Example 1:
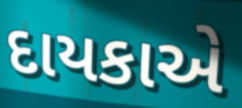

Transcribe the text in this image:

દાયકાએ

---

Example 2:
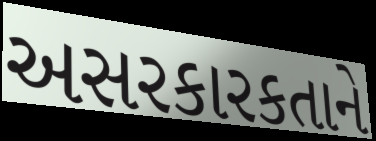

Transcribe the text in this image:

અસરકારકતાને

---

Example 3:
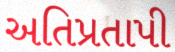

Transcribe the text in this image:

અતિપ્રતાપી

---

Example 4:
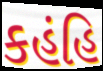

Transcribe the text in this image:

કહંહિ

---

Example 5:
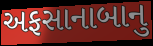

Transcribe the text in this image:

અફસાનાબાનુ